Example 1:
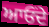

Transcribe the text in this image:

ਆਓਂਦੇ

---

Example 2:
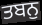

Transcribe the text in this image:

ਤਬਨੁ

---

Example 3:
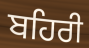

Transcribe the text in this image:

ਬਹਿਰੀ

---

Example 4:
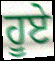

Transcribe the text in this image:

ਹੂਏ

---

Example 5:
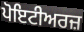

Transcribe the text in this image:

ਪੋਇਟੀਅਰਜ਼